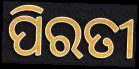
ପିରତୀ